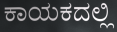
ಕಾಯಕದಲ್ಲಿ